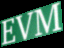
EVM